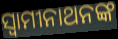
ସ୍ଵାମୀନାଥନଙ୍କ